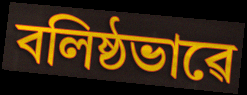
বলিষ্ঠভাৱে